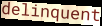
delinquent